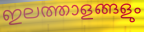
ഇലത്താളങ്ങളും